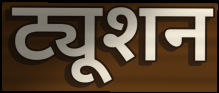
ट्यूशन